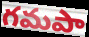
గమపా